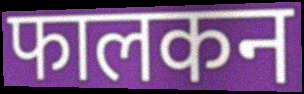
फालकन